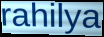
rahilya